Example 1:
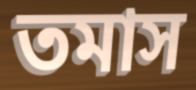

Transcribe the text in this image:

তমাস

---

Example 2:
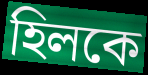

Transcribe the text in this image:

হিলকে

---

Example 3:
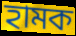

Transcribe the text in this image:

হামক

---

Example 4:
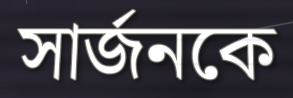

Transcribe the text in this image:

সার্জনকে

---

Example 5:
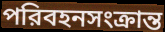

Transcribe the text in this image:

পরিবহনসংক্রান্ত